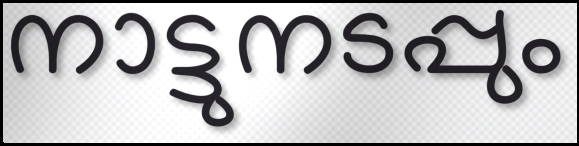
നാട്ടുനടപ്പും